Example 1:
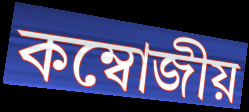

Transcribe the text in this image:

কম্বোজীয়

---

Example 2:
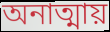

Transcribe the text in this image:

অনাত্মায়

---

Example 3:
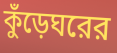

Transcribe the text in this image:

কুঁড়েঘরের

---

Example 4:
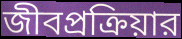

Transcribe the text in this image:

জীবপ্রক্রিয়ার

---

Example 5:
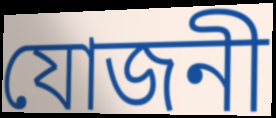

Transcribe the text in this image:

যোজনী